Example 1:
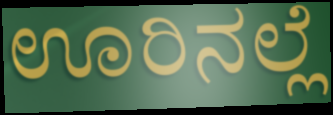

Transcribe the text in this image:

ಊರಿನಲ್ಲೆ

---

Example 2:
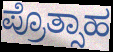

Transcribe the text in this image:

ಪ್ರೊತ್ಸಾಹ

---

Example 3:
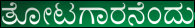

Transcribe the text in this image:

ತೋಟಗಾರನೆಂದು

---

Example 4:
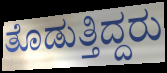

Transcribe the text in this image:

ತೊಡುತ್ತಿದ್ದರು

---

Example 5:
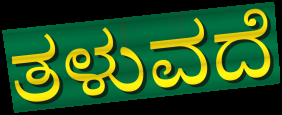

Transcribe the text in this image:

ತಳುವದೆ